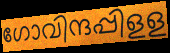
ഗോവിന്ദപ്പിളള